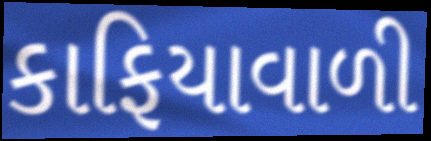
કાફિયાવાળી